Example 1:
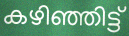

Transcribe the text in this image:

കഴിഞ്ഞിട്ട്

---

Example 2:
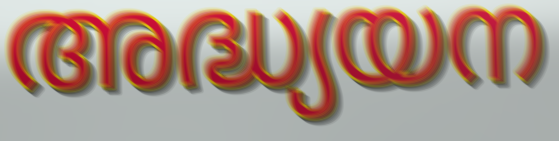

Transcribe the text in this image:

അദ്ധ്യയന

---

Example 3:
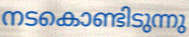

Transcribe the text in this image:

നടകൊണ്ടിടുന്നു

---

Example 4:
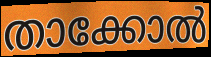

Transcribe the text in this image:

താക്കോൽ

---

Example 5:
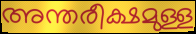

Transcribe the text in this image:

അന്തരീക്ഷമുള്ള